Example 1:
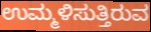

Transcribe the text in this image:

ಉಮ್ಮಳಿಸುತ್ತಿರುವ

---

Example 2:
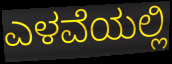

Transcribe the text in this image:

ಎಳವೆಯಲ್ಲಿ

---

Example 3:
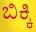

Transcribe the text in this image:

ಬಿಕ್ಕಿ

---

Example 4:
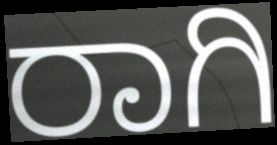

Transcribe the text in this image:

ರಾಗಿ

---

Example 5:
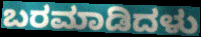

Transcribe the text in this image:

ಬರಮಾಡಿದಳು